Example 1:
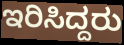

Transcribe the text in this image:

ಇರಿಸಿದ್ದರು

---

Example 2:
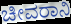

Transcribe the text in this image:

ಚೀವರಾನಿ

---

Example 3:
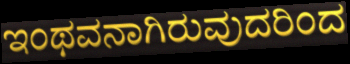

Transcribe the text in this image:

ಇಂಥವನಾಗಿರುವುದರಿಂದ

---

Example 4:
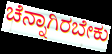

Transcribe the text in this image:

ಚೆನ್ನಾಗಿರಬೇಕು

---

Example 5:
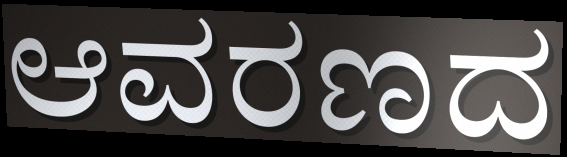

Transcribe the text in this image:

ಆವರಣದ